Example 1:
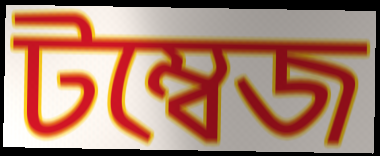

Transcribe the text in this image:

টম্বেজ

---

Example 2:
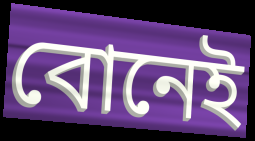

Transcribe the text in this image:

বোনেই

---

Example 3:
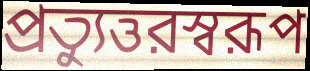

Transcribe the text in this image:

প্রত্যুত্তরস্বরূপ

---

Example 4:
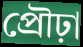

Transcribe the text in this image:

প্রৌঢ়া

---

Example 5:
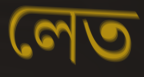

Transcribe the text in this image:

লেত